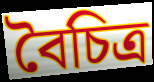
বৈচিত্র